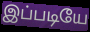
இப்படியே